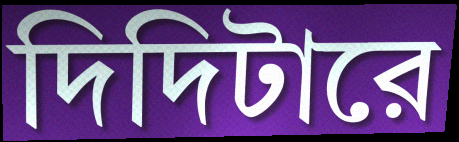
দিদিটারে